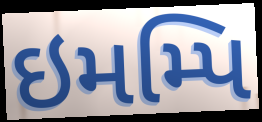
ઇમમ્પિ